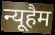
न्यूहैम